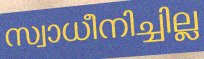
സ്വാധീനിച്ചില്ല